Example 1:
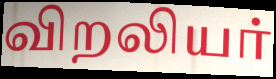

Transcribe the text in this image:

விறலியர்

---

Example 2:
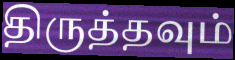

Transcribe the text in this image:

திருத்தவும்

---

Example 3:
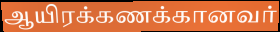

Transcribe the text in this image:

ஆயிரக்கணக்கானவர்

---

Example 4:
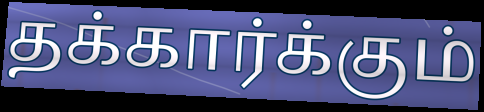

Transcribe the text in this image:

தக்கார்க்கும்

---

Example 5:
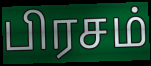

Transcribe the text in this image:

பிரசம்